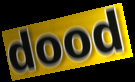
dood